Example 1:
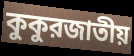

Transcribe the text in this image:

কুকুরজাতীয়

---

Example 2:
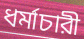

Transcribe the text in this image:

ধর্মাচারী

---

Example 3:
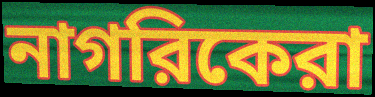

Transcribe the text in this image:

নাগরিকেরা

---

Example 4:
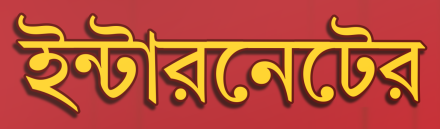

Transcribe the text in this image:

ইন্টারনেটের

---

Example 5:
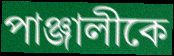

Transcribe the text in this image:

পাঞ্জালীকে